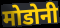
मोडोनी